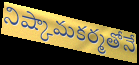
నిష్కామకర్మతోనే